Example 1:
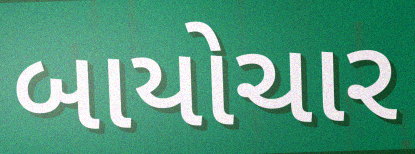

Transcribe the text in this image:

બાયોચાર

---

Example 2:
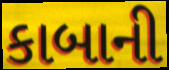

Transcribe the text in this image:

કાબાની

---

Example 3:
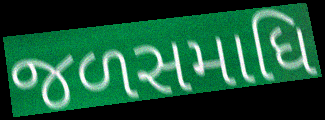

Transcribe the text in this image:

જળસમાધિ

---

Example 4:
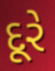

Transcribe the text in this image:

દૂરે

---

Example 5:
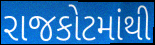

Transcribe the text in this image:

રાજકોટમાંથી